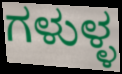
ಗಳುಳ್ಳ